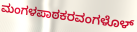
ಮಂಗಳಪಾಠಕರವಂಗಳೊಳ್